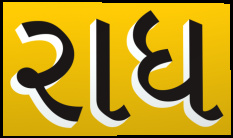
રાધ